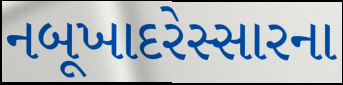
નબૂખાદરેસ્સારના